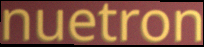
nuetron